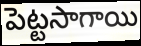
పెట్టసాగాయి